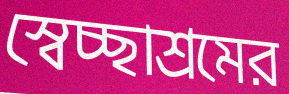
স্বেচ্ছাশ্রমের